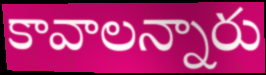
కావాలన్నారు